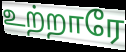
உற்றாரே